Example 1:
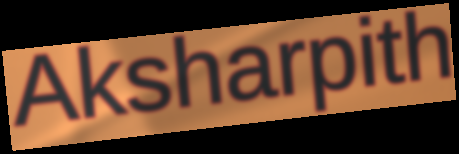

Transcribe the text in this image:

Aksharpith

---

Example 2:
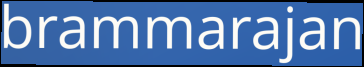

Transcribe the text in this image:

brammarajan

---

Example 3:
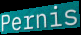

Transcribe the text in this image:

Pernis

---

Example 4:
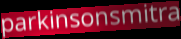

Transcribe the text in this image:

parkinsonsmitra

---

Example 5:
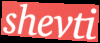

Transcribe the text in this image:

shevti